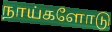
நாய்களோடு